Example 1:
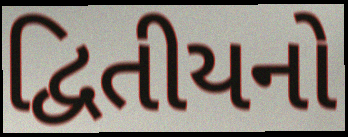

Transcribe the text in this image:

દ્વિતીયનો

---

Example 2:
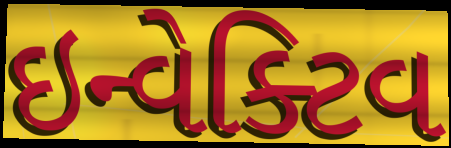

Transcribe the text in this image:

ઇન્વેક્ટિવ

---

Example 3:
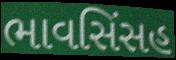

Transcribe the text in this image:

ભાવસિંસહ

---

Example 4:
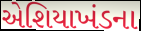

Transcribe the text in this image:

એશિયાખંડના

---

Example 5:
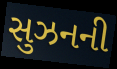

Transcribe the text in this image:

સુઝનની